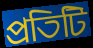
প্রতিটি